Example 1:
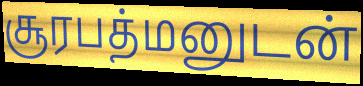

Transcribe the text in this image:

சூரபத்மனுடன்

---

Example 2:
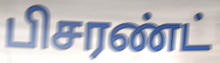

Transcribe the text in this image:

பிசரண்ட்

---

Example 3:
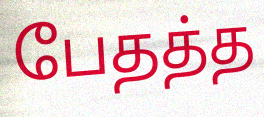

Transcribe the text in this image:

பேதத்த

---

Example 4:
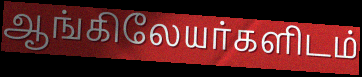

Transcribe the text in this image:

ஆங்கிலேயர்களிடம்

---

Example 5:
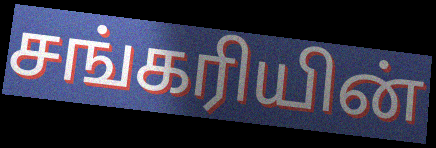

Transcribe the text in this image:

சங்கரியின்